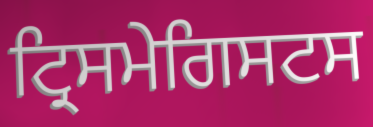
ਟ੍ਰਿਸਮੇਗਿਸਟਸ